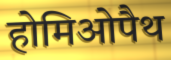
होमिओपैथ